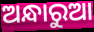
ଅନ୍ଧାରୁଆ